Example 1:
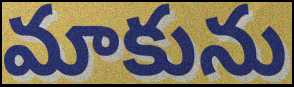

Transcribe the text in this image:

మాకును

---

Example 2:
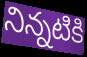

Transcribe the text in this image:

నిన్నటికి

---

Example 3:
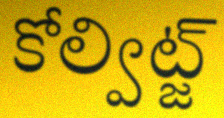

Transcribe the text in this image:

కోల్విట్జ్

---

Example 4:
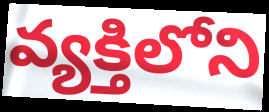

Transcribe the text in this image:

వ్యక్తిలోని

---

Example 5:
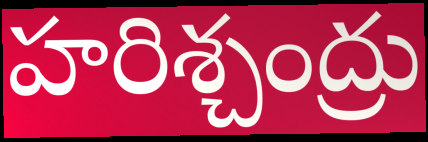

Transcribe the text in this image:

హరిశ్చంద్రు